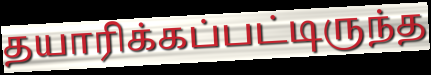
தயாரிக்கப்பட்டிருந்த